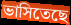
ভাসিতেছে